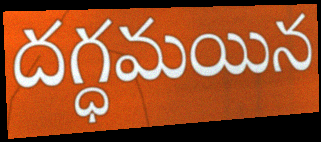
దగ్ధమయిన